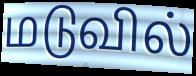
மடுவில்